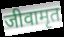
जीवामृत